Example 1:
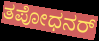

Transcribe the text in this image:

ತಪೋಧನರ್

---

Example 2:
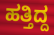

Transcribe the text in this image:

ಹತ್ತಿದ್ದ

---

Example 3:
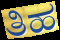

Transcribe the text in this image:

ತಿಹ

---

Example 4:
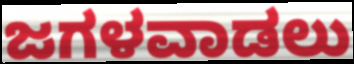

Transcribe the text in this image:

ಜಗಳವಾಡಲು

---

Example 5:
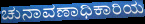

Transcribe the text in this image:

ಚುನಾವಣಾಧಿಕಾರಿಯ